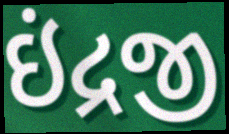
ઇંદ્રજી